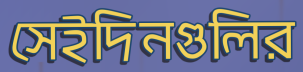
সেইদিনগুলির